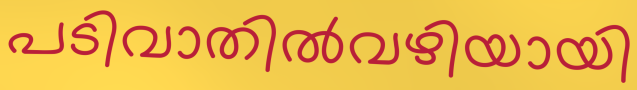
പടിവാതിൽവഴിയായി